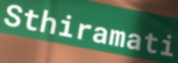
Sthiramati